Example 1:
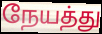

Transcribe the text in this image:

நேயத்து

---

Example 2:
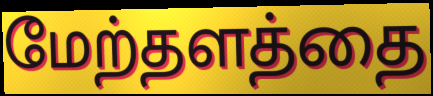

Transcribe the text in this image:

மேற்தளத்தை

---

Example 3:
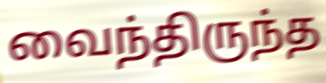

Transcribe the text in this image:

வைந்திருந்த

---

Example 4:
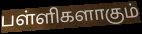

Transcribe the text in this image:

பள்ளிகளாகும்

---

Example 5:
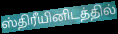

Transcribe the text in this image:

ஸ்திரீயினிடத்தில்